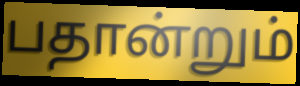
பதான்றும்